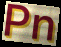
Pn